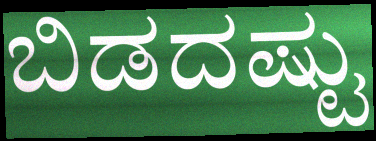
ಬಿಡದಷ್ಟು